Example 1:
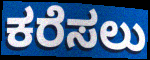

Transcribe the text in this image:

ಕರೆಸಲು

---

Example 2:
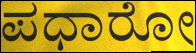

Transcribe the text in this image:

ಪಧಾರೋ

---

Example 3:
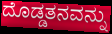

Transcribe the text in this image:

ದೊಡ್ಡತನವನ್ನು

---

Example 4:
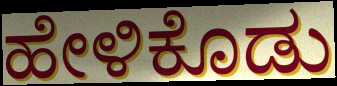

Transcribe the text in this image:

ಹೇಳಿಕೊಡು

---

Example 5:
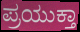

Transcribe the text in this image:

ಪ್ರಯುಕ್ತಾ